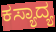
ಕಸ್ಯಾದ್ಯ